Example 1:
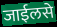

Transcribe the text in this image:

जाईलसे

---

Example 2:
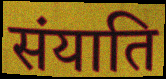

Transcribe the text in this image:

संयाति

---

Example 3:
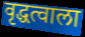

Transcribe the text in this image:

वृद्धत्वाला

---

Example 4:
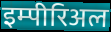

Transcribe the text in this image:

इम्पीरिअल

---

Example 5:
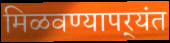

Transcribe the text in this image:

मिळवण्यापर्यंत